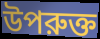
উপরুক্ত